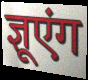
ज्ञूएंग